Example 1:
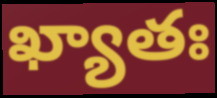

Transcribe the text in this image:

ఖ్యాతః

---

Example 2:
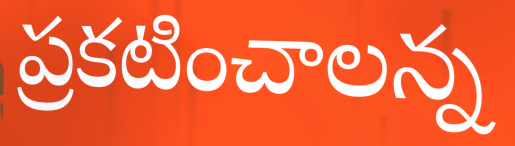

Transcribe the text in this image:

ప్రకటించాలన్న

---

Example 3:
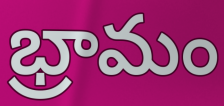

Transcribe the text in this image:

భ్రామం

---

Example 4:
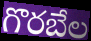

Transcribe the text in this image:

గొరబేల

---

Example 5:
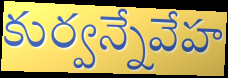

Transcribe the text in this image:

కుర్వన్నేవేహ